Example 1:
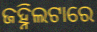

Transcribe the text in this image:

ଜହ୍ନିଲଟାରେ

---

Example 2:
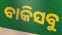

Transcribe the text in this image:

ବାକିସବୁ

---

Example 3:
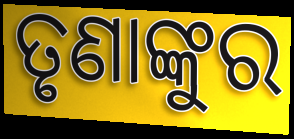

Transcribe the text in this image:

ତୃଣାଙ୍କୁର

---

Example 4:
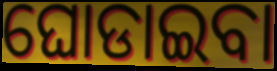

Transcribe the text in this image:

ଘୋଡାଇବା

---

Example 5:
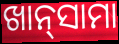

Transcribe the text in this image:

ଖାନ୍‍ସାମା